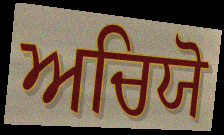
ਅਚਿਯੋ